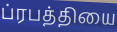
ப்ரபத்தியை